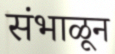
संभाळून